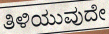
ತಿಳಿಯುವುದೇ